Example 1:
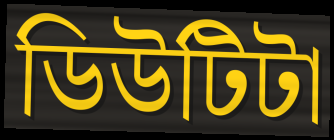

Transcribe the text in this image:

ডিউটিটা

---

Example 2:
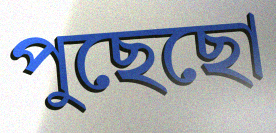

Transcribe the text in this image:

পুছেছো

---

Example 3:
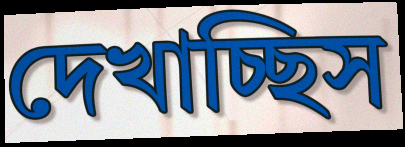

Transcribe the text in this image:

দেখাচ্ছিস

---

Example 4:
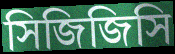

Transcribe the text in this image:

সিজিজিসি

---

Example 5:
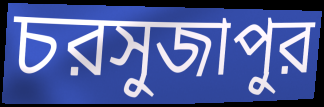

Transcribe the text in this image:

চরসুজাপুর